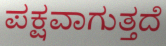
ಪಕ್ಷವಾಗುತ್ತದೆ